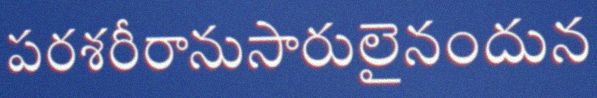
పరశరీరానుసారులైనందున